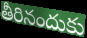
తీరినందుకు